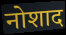
नोशाद